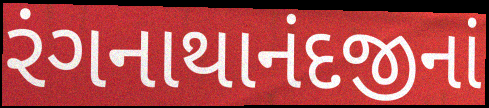
રંગનાથાનંદજીનાં